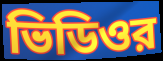
ভিডিওর